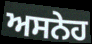
ਅਸਨੇਹ